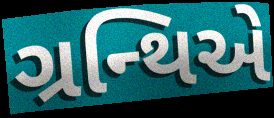
ગ્રન્થિએ